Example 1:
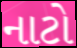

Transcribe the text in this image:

નાટો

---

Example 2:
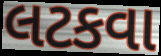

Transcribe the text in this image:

લટકવા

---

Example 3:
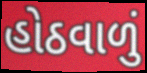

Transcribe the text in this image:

હોઠવાળું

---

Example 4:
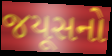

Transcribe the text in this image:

જયૂસનો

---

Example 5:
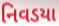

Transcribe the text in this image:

નિવડયા